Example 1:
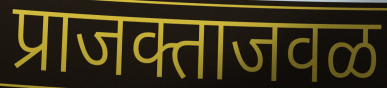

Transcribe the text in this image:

प्राजक्ताजवळ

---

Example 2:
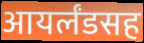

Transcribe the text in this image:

आयर्लंडसह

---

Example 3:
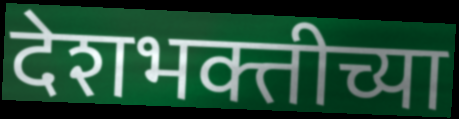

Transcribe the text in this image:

देशभक्तीच्या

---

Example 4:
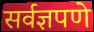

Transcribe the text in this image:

सर्वज्ञपणे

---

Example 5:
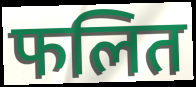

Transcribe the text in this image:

फलित